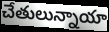
చేతులున్నాయా